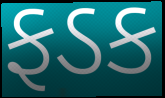
ફડક